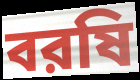
বরষি